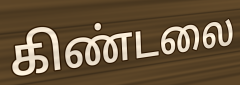
கிண்டலை